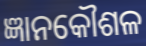
ଜ୍ଞାନକୌଶଳ